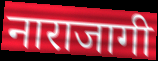
नाराजागी